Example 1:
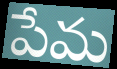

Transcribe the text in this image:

పేమ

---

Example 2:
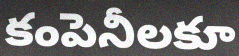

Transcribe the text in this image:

కంపెనీలకూ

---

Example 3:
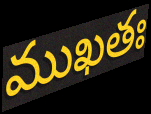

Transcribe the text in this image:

ముఖతః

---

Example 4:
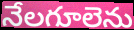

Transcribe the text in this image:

నేలగూలెను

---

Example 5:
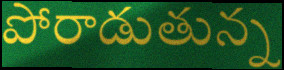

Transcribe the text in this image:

పోరాడుతున్న